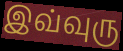
இவ்வுரு